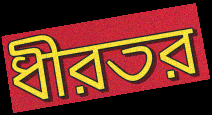
ধীরতর